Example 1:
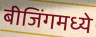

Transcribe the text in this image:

बीजिंगमध्ये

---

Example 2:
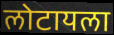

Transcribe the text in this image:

लोटायला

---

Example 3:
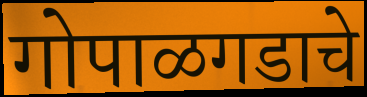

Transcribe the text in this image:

गोपाळगडाचे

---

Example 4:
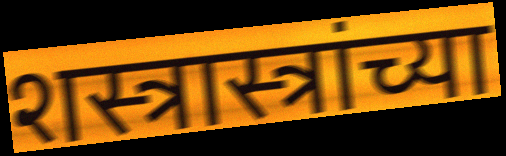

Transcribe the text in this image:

शस्त्रास्त्रांच्या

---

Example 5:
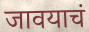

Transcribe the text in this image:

जावयाचं